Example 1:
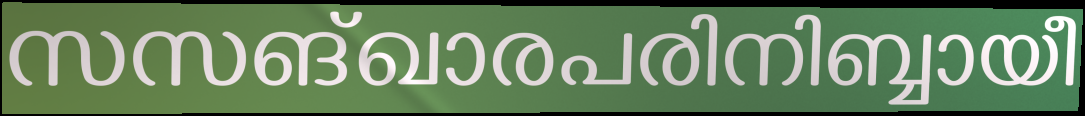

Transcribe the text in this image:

സസങ്ഖാരപരിനിബ്ബായീ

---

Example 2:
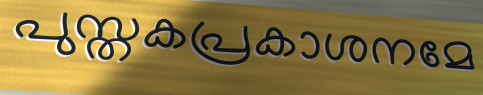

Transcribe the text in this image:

പുസ്തകപ്രകാശനമേ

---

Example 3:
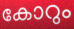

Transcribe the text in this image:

കോറും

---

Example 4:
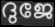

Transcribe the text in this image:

ദുജേ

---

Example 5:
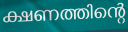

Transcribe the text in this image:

ക്ഷണത്തിന്റെ